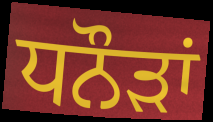
ਧਨੌੜਾਂ